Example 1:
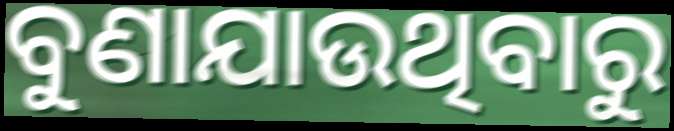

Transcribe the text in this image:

ବୁଣାଯାଉଥିବାରୁ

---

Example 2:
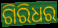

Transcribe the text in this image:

ଗିରିଧର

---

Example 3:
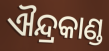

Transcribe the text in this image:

ଐନ୍ଦ୍ରକାଣ୍ଡ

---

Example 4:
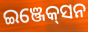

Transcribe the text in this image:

ଇଞ୍ଜେକ୍‌ସନ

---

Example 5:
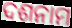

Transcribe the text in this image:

ଦଶନାମ